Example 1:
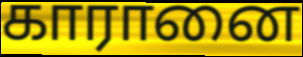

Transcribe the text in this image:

காரானை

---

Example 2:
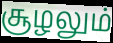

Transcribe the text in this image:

சூழலும்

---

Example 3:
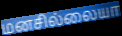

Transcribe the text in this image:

மனசில்லையா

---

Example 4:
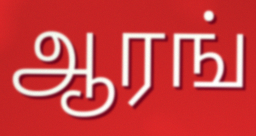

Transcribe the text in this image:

ஆரங்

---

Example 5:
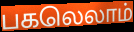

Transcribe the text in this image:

பகலெலாம்